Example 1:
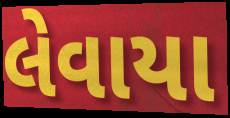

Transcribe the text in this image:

લેવાયા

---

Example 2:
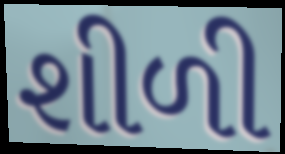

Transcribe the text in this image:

શીળી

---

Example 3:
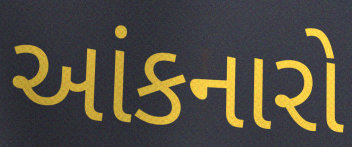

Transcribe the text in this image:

આંકનારો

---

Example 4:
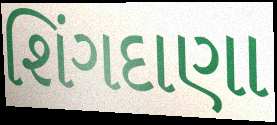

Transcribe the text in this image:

શિંગદાણા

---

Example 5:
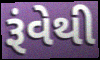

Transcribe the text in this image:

રૂંવેથી